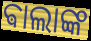
ଵାଲାଙ୍କ